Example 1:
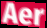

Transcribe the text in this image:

Aer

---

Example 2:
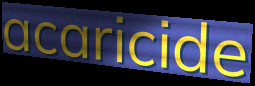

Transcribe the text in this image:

acaricide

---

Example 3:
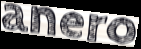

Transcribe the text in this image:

anero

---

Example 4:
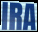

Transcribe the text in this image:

IRA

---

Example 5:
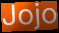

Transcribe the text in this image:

Jojo